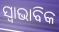
ସ୍ୱାଭାବିକ